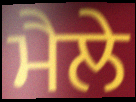
ਮੈਲੇ